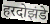
हरदोझंडे